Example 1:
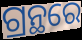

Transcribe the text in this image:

ଗ୍ରନ୍ଥରେ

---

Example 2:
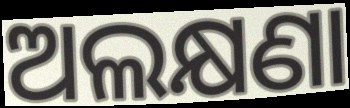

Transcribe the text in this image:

ଅଲକ୍ଷଣା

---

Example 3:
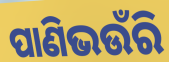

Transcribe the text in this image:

ପାଣିଭଉଁରି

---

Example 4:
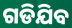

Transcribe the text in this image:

ଗଡିଯିବ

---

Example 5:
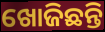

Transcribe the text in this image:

ଖୋଜିଛନ୍ତି